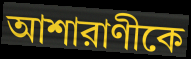
আশারাণীকে